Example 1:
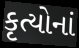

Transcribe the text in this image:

કૃત્યોનાં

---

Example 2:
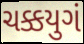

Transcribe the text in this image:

ચક્કયુગં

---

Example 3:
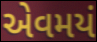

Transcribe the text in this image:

એવમયં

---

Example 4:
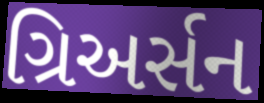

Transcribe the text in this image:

ગ્રિઅર્સન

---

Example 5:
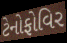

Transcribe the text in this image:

ટેનોફોવિર